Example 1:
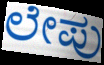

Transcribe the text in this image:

ಲೇಪು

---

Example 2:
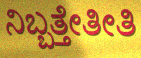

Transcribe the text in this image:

ನಿಬ್ಬತ್ತೇತೀತಿ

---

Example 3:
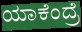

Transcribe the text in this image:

ಯಾಕೆಂದ್ರೆ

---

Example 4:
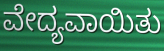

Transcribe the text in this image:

ವೇದ್ಯವಾಯಿತು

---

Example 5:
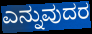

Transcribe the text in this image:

ಎನ್ನುವುದರ